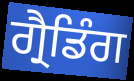
ਗ੍ਰੈਡਿੰਗ